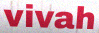
vivah